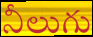
నీలుగు